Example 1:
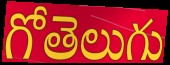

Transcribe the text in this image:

గోతెలుగు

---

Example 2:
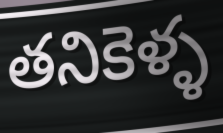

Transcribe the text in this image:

తనికెళ్ళ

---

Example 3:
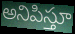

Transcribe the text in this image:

అనిపిస్తూ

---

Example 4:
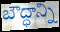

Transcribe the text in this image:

బౌద్ధాన్ని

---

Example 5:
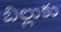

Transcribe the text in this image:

బిల్లుకు